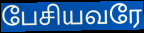
பேசியவரே